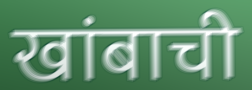
खांबाची